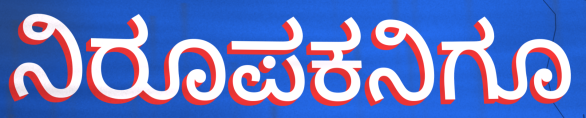
ನಿರೂಪಕನಿಗೂ